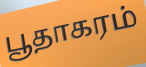
பூதாகரம்